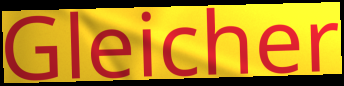
Gleicher